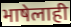
भाषेलाही